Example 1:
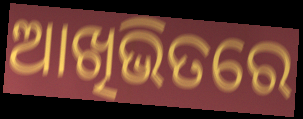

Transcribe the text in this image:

ଆଖିଭିତରେ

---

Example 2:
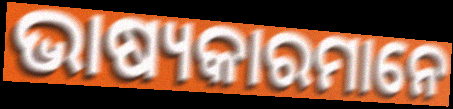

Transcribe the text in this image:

ଭାଷ୍ୟକାରମାନେ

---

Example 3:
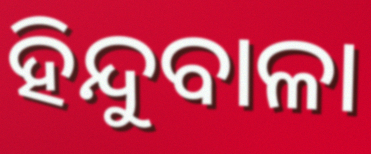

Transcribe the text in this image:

ହିନ୍ଦୁବାଳା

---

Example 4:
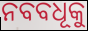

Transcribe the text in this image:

ନବବଧୂକୁ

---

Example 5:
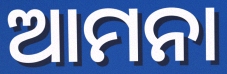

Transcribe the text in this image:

ଆମନା